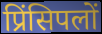
प्रिंसिपलों